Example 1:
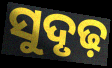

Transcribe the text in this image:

ସୁଦୃଢ଼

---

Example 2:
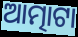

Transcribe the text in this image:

ଆତ୍ମାଟା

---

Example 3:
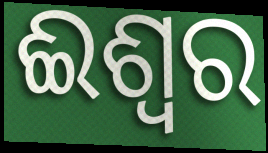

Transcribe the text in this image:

ଈଶ୍ୱର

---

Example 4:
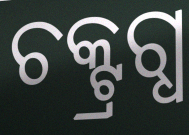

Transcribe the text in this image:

ଚକ୍ଟ୍ରଗ୍ଧ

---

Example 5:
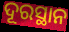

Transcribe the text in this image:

ଦୂରସ୍ଥାନ